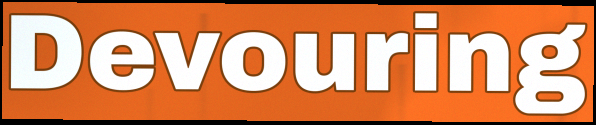
Devouring